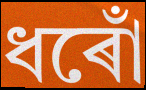
ধৰোঁ